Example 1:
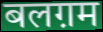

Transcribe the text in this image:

बलग़म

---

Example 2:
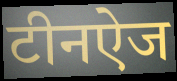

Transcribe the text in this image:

टीनऐज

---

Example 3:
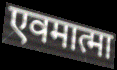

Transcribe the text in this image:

एवमात्मा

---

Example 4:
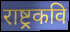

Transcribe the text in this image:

राष्ट्रकवि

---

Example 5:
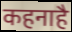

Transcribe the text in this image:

कहनाहै